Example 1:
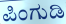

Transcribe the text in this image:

ಪಿಂಗುಡಿ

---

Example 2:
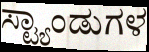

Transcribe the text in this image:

ಸ್ಟ್ಯಾಂಡುಗಳ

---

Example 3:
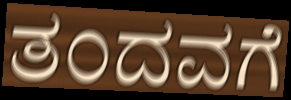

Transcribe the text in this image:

ತಂದವಗೆ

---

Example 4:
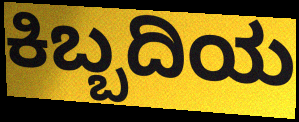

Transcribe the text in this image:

ಕಿಬ್ಬದಿಯ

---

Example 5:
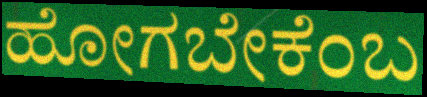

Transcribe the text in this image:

ಹೋಗಬೇಕೆಂಬ